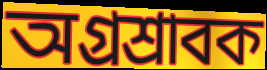
অগ্রশ্রাবক